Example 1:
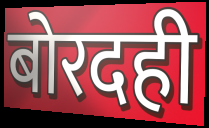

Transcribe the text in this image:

बोरदही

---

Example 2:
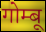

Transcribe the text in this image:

गोम्बू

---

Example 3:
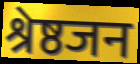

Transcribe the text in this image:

श्रेष्ठजन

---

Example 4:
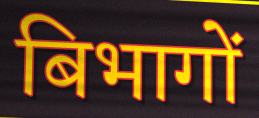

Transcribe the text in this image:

बिभागों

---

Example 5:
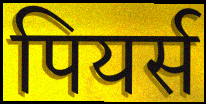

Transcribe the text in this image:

पियर्स